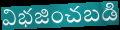
విభజించబడి